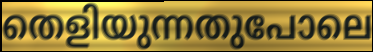
തെളിയുന്നതുപോലെ